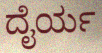
ದೈರ್ಯ